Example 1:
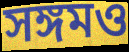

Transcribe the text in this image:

সঙ্গমও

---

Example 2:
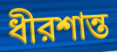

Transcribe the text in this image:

ধীরশান্ত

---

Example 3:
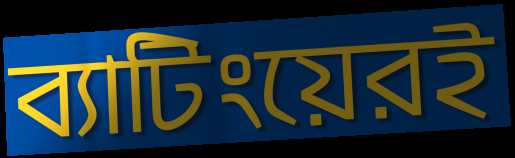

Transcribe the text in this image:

ব্যাটিংয়েরই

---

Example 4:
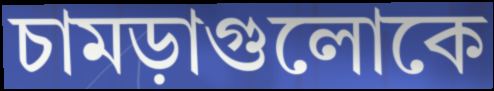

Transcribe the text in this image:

চামড়াগুলোকে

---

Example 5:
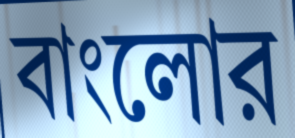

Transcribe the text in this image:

বাংলোর